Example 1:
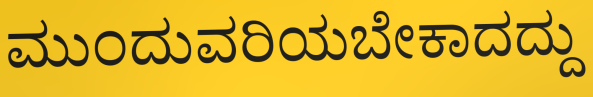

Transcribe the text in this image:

ಮುಂದುವರಿಯಬೇಕಾದದ್ದು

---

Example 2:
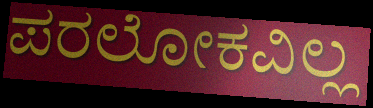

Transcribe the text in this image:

ಪರಲೋಕವಿಲ್ಲ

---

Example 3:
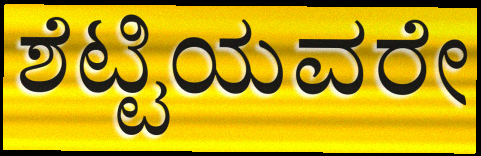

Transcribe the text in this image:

ಶೆಟ್ಟಿಯವರೇ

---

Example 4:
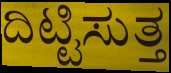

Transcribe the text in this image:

ದಿಟ್ಟಿಸುತ್ತ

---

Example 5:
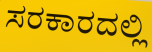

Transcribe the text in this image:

ಸರಕಾರದಲ್ಲಿ